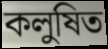
কলুষিত